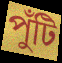
পুঁটি